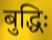
बुद्धिः